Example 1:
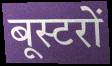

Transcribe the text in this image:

बूस्टरों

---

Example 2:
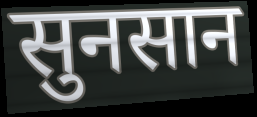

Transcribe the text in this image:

सुनसान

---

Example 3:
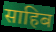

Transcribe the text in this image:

साहिब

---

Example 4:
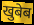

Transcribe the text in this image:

खुबेब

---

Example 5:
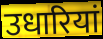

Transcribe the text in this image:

उधारियां